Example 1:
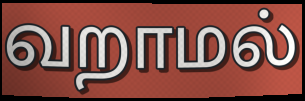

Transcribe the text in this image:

வறாமல்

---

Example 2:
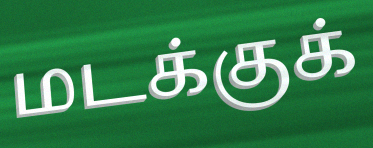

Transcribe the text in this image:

மடக்குக்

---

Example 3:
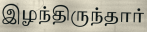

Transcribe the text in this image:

இழந்திருந்தார்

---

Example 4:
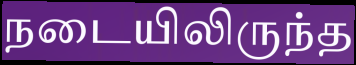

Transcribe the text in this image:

நடையிலிருந்த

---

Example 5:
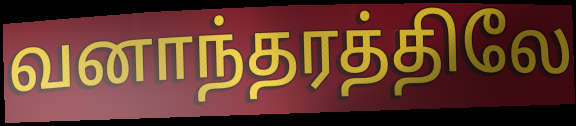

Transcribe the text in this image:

வனாந்தரத்திலே